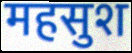
महसुश